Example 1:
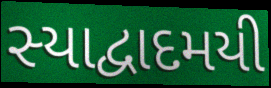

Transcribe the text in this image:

સ્યાદ્વાદમયી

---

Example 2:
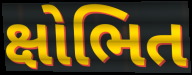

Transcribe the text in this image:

ક્ષોભિત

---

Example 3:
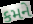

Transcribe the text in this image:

કમને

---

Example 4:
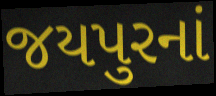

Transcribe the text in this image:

જયપુરનાં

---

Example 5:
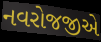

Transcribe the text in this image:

નવરોજજીએ